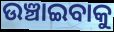
ଉଞ୍ଚାଇବାକୁ